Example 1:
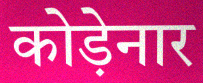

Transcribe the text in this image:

कोड़ेनार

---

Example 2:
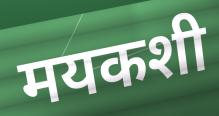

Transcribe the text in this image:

मयकशी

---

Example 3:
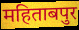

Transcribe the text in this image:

महिताबपुर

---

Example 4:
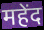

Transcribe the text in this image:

महेंद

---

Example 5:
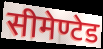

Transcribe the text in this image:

सीमेण्टेड